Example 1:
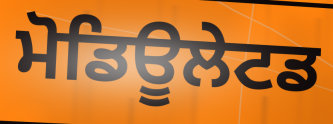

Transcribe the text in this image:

ਮੋਡਿਊਲੇਟਡ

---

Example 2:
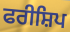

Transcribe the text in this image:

ਫਰੀਸ਼ਿਪ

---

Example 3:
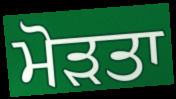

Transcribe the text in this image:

ਮੋੜਤਾ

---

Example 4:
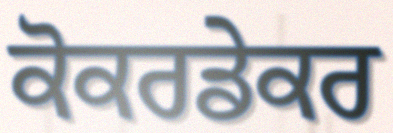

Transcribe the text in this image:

ਕੋਕਰਡੇਕਰ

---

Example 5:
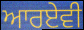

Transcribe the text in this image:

ਆਰਏਵੀ